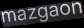
mazgaon